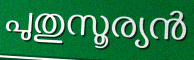
പുതുസൂര്യൻ